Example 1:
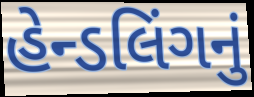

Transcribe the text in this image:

હેન્ડલિંગનું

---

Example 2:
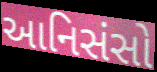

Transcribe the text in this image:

આનિસંસો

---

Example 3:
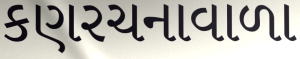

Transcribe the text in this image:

કણરચનાવાળા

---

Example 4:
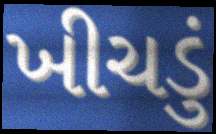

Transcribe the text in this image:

ખીચડું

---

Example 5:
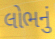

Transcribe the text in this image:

લોભનું